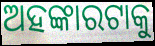
ଅହଙ୍କାରଟାକୁ